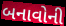
બનાવોની